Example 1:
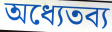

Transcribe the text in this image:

অধ্যেতব্য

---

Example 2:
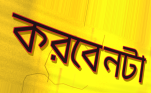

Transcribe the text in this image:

করবেনটা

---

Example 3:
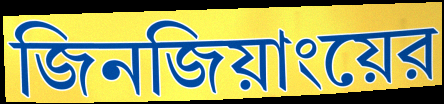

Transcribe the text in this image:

জিনজিয়াংয়ের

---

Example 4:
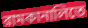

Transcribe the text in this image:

রামকানালিতে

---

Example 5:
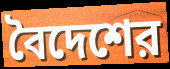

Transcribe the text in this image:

বৈদেশের